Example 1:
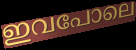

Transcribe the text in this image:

ഇവപോലെ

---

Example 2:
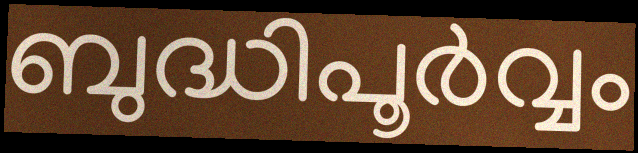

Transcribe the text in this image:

ബുദ്ധിപൂർവ്വം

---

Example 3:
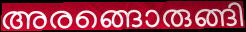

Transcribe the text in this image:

അരങ്ങൊരുങ്ങി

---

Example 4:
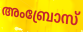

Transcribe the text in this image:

അംബ്രോസ്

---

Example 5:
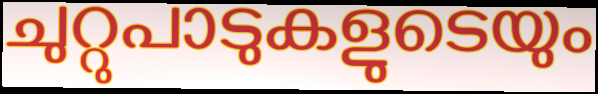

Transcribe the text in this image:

ചുറ്റുപാടുകളുടെയും